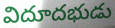
విదూదభుడు